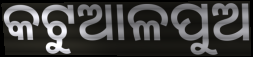
କଟୁଆଳପୁଅ